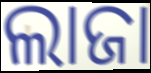
ଲାଜା